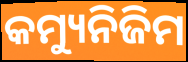
କମ୍ୟୁନିଜିମ